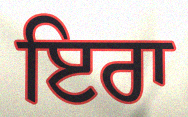
ਇਰਾ